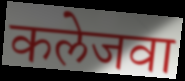
कलेजवा